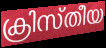
ക്രിസ്‌തീയ